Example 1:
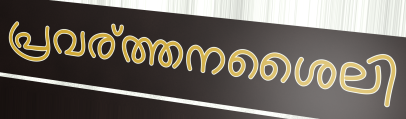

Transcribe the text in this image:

പ്രവര്ത്തനശൈലി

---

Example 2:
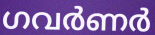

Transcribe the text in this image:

ഗവർണർ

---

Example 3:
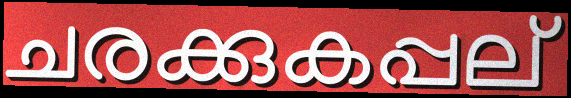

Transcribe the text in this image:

ചരക്കുകപ്പല്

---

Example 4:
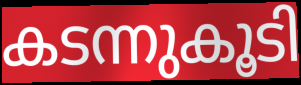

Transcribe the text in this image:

കടന്നുകൂടി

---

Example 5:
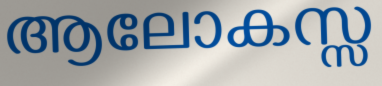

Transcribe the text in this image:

ആലോകസ്സ